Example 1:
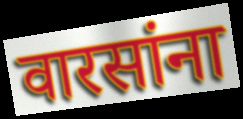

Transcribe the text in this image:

वारसांना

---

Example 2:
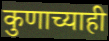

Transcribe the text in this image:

कुणाच्याही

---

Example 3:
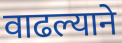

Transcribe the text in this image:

वाढल्याने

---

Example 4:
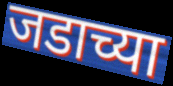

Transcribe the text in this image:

जडाच्या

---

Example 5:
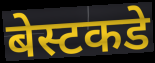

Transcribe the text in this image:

बेस्टकडे